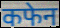
कफेन